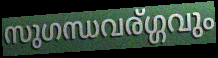
സുഗന്ധവര്ഗ്ഗവും